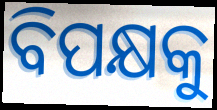
ବିପକ୍ଷକୁ